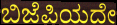
ಬಿಜೆಪಿಯದೇ